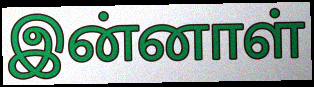
இன்னாள்